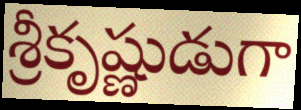
శ్రీకృష్ణుడుగా